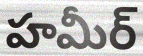
హమీర్